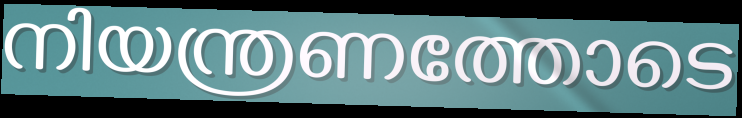
നിയന്ത്രണത്തോടെ